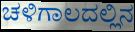
ಚಳಿಗಾಲದಲ್ಲಿನ